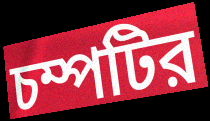
চম্পটির